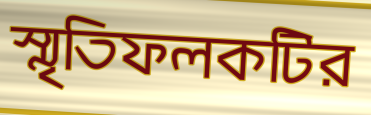
স্মৃতিফলকটির